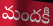
మందకీ